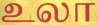
உலா